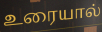
உரையால்